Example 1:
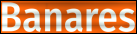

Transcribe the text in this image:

Banares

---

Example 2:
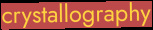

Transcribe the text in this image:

crystallography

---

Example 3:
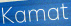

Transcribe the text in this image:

Kamat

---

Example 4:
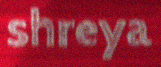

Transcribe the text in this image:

shreya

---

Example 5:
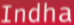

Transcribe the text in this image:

Indha